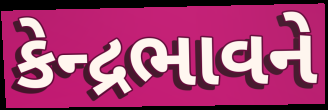
કેન્દ્રભાવને